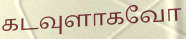
கடவுளாகவோ